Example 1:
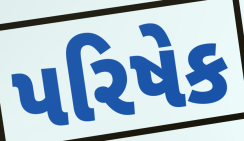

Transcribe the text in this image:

પરિષેક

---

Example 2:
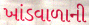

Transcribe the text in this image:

ખાંડવાળાની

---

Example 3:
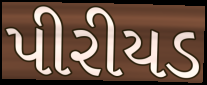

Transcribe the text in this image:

પીરીયડ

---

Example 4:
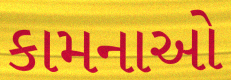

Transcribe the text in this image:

કામનાઓ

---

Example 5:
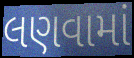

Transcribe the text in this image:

લણવામાં